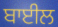
ਬਾਈਲ